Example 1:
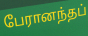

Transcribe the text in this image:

பேரானந்தப்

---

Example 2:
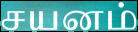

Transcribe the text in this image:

சயனம்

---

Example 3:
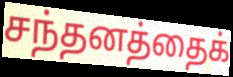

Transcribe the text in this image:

சந்தனத்தைக்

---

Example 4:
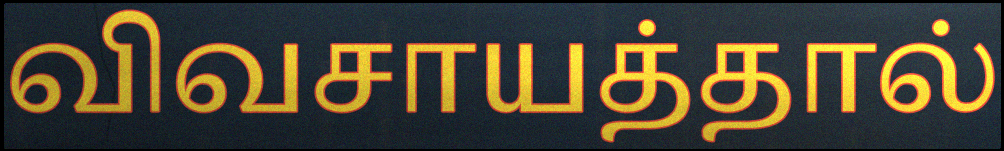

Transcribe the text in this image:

விவசாயத்தால்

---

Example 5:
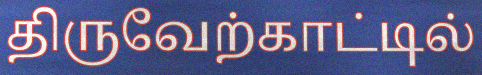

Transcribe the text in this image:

திருவேற்காட்டில்